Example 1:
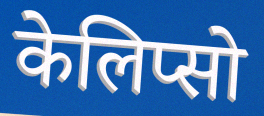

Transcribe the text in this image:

केलिप्सो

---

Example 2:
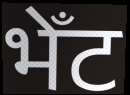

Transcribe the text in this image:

भेँट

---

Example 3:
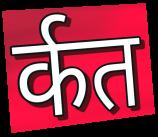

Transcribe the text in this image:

र्कत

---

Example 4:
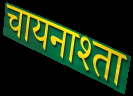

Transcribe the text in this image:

चायनाश्ता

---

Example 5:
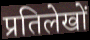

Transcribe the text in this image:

प्रतिलेखों